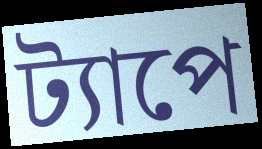
ট্যাপে